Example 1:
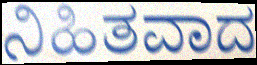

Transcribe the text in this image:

ನಿಹಿತವಾದ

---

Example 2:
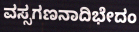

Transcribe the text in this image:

ವಸ್ಸಗಣನಾದಿಭೇದಂ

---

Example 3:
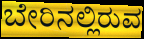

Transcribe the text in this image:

ಬೇರಿನಲ್ಲಿರುವ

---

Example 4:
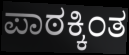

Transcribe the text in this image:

ಪಾಠಕ್ಕಿಂತ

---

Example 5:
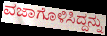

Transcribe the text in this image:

ವಜಾಗೊಳಿಸಿದ್ದನ್ನು